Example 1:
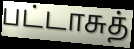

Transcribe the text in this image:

பட்டாசுத்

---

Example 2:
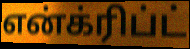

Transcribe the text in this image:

என்க்ரிப்ட்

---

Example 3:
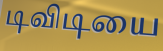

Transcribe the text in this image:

டிவிடியை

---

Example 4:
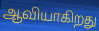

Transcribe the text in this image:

ஆவியாகிறது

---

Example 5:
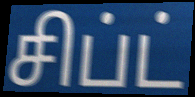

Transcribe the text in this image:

சிப்ட்